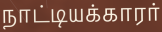
நாட்டியக்காரர்